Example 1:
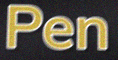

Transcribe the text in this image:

Pen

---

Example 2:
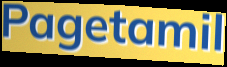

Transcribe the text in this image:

Pagetamil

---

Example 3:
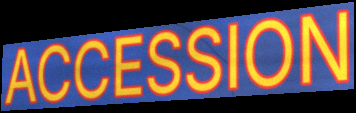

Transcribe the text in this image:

ACCESSION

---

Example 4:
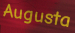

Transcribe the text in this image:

Augusta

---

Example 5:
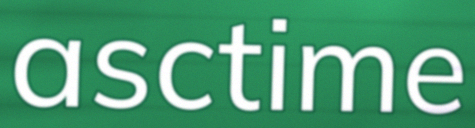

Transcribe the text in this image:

asctime